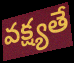
వక్ష్యతే